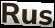
Rus